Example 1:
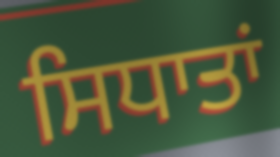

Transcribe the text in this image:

ਸਿਧਾਤਾਂ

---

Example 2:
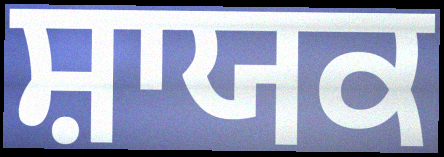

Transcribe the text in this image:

ਸ਼ਾਯਕ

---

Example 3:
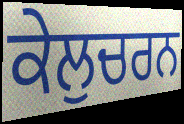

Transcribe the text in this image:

ਕੇਲੁਚਰਨ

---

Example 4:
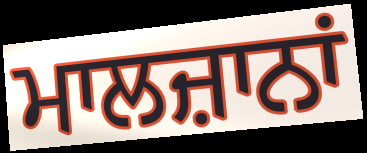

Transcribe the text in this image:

ਮਾਲਜ਼ਾਨਾਂ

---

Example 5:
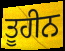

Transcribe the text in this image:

ਤੂਹੀਨ